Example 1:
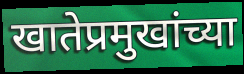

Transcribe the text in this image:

खातेप्रमुखांच्या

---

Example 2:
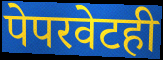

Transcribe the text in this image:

पेपरवेटही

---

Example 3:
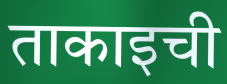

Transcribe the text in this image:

ताकाइची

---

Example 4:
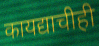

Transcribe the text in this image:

कायद्याचीही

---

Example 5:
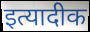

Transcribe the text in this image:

इत्यादीक